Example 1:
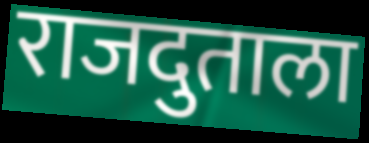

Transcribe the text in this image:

राजदुताला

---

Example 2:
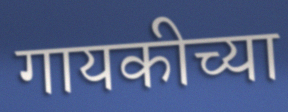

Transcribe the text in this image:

गायकीच्या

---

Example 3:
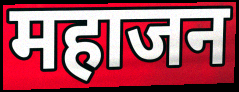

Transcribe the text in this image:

महाजन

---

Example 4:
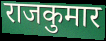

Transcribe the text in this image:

राजकुमार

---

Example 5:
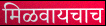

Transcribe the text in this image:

मिळवायचाच